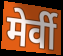
मेर्वी